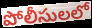
పోలీసులలో